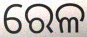
ରେଳ